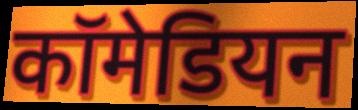
कॉमेडियन